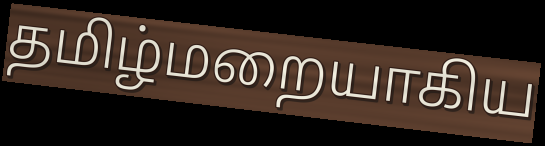
தமிழ்மறையாகிய